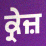
ਕ੍ਰੇਜ਼